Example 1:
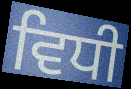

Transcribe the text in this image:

ਵਿਧੀ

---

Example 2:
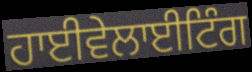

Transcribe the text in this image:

ਹਾਈਵੇਲਾਈਟਿੰਗ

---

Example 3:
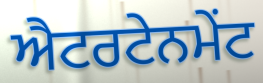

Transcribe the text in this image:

ਐਟਰਟੇਨਮੇਂਟ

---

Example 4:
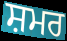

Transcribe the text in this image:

ਸ਼ਮਰ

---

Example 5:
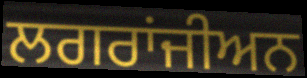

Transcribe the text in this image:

ਲਗਰਾਂਜੀਅਨ